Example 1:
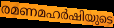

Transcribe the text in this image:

രമണമഹർഷിയുടെ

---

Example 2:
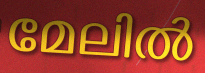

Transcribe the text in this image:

മേലിൽ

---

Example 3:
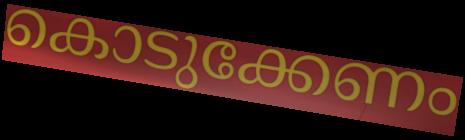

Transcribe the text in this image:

കൊടുക്കേണം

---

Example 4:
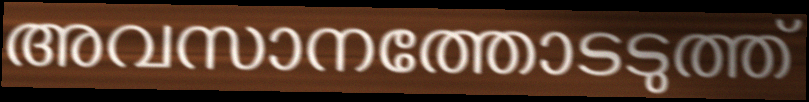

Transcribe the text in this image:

അവസാനത്തോടടുത്ത്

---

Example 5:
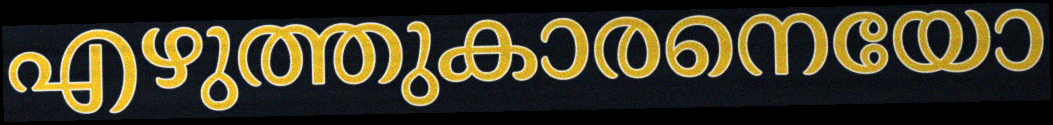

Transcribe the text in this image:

എഴുത്തുകാരനെയോ